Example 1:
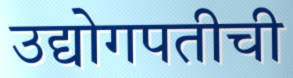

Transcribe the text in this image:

उद्योगपतीची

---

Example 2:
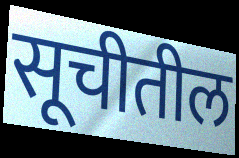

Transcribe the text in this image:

सूचीतील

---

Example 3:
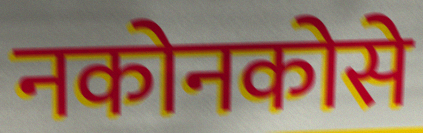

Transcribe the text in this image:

नकोनकोसे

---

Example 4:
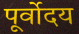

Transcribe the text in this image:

पूर्वोदय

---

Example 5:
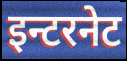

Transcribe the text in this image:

इन्टरनेट